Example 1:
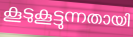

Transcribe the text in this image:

കൂടുകൂട്ടുന്നതായി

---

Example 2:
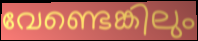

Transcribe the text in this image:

വേണ്ടെങ്കിലും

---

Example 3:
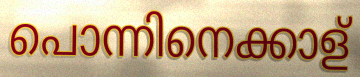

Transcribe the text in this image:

പൊന്നിനെക്കാള്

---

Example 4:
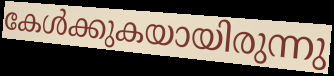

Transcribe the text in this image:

കേൾക്കുകയായിരുന്നു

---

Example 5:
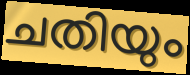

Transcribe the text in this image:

ചതിയും